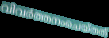
വിവർത്തനംചെയ്തത്